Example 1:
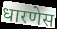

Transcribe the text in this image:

धारणेस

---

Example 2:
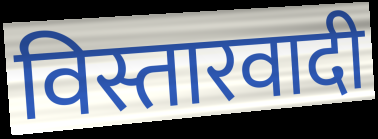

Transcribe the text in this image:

विस्तारवादी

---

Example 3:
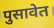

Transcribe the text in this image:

पुसावेत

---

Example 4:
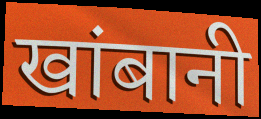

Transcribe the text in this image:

खांबानी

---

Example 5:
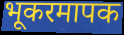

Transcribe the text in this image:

भूकरमापक